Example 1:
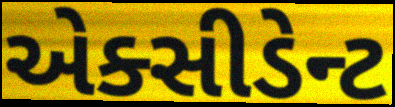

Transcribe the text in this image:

એક્સીડેન્ટ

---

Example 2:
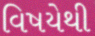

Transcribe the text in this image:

વિષયેથી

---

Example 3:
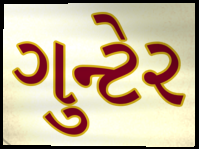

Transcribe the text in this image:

ગુન્ટેર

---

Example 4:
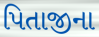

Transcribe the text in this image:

પિતાજીના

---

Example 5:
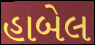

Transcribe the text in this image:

હાબેલ